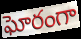
ఘోరంగా